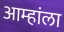
आम्हांला